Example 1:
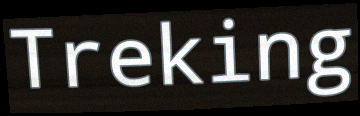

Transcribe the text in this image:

Treking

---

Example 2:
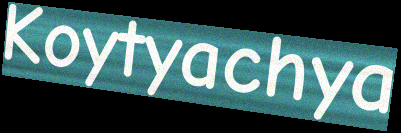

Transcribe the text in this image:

Koytyachya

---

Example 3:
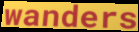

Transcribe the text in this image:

wanders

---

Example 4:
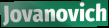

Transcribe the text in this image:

Jovanovich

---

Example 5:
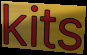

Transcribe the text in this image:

kits